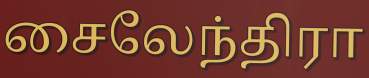
சைலேந்திரா